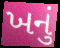
ખનું